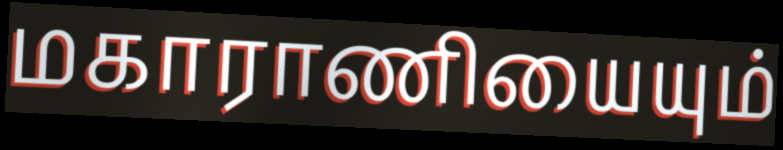
மகாராணியையும்